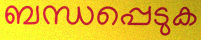
ബന്ധപ്പെടുക